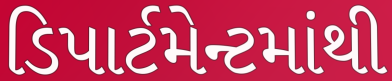
ડિપાર્ટમેન્ટમાંથી